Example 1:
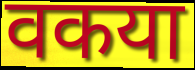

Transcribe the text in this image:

वकया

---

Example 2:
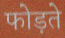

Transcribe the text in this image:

फोड़ते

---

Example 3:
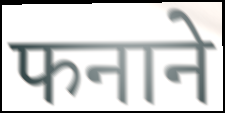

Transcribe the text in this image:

फनाने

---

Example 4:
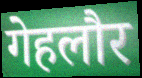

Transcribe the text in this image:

गेहलौर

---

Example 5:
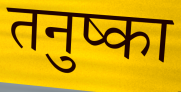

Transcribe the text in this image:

तनुष्का